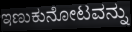
ಇಣುಕುನೋಟವನ್ನು